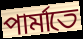
পার্মাতে